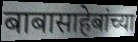
बाबासाहेबांच्‍या